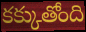
కక్కుతోంది